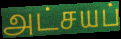
அட்சயப்